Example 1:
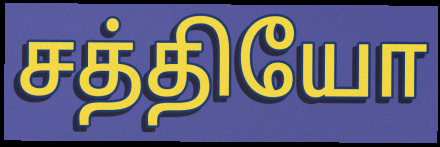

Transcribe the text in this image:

சத்தியோ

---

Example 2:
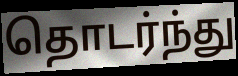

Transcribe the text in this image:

தொடர்ந்து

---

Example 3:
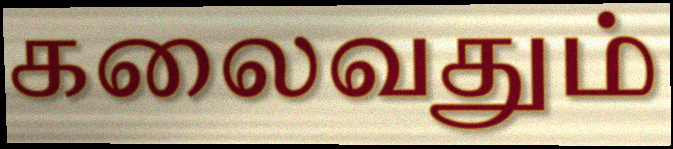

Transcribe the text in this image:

கலைவதும்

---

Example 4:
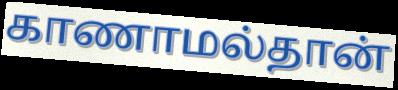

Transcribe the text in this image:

காணாமல்தான்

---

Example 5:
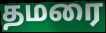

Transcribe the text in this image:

தமரை